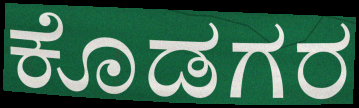
ಕೊಡಗರ